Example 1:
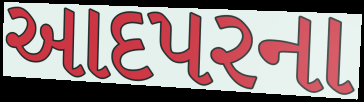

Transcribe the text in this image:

આદપરના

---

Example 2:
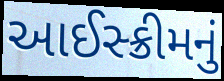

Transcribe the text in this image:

આઈસ્ક્રીમનું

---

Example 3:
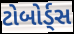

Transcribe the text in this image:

ટોબોર્ડ્સ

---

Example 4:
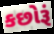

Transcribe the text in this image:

કછોરૂં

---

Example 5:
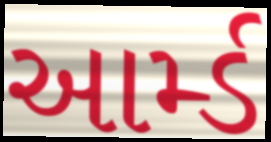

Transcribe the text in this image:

આર્મ્ડ